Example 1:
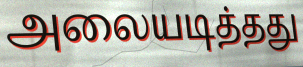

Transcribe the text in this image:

அலையடித்தது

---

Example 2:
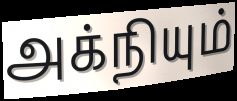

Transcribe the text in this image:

அக்நியும்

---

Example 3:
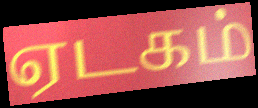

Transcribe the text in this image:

ஏடகம்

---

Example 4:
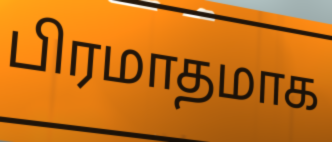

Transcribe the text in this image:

பிரமாதமாக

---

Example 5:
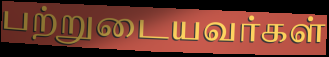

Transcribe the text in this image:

பற்றுடையவர்கள்